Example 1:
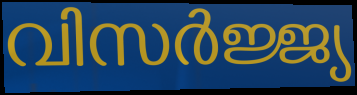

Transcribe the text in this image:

വിസർജ്ജ്യ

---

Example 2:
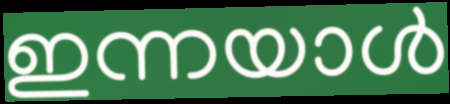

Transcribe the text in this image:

ഇന്നയാൾ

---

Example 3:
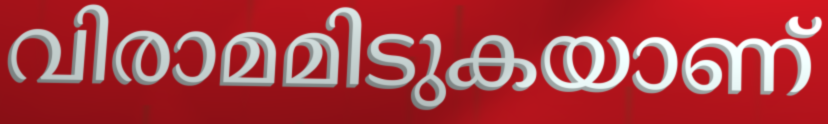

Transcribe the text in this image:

വിരാമമിടുകയാണ്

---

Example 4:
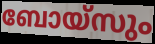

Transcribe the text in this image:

ബോയ്സും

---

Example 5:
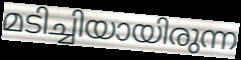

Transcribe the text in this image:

മടിച്ചിയായിരുന്ന